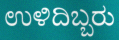
ಉಳಿದಿಬ್ಬರು